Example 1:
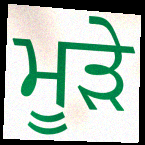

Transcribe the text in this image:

ਮੂੜੇ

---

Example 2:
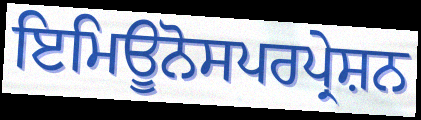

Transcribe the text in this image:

ਇਮਿਊਨੋਸਪਰਪ੍ਰੇਸ਼ਨ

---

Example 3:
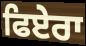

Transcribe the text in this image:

ਫਿਏਰਾ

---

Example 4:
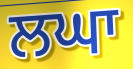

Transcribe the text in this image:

ਲਘਾ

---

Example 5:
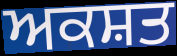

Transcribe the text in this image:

ਅਕਸ਼ਤ